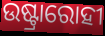
ଉଷ୍ଟ୍ରାରୋହୀ